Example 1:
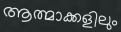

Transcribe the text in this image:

ആത്മാക്കളിലും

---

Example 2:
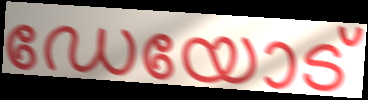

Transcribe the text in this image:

ഡേയോട്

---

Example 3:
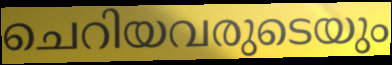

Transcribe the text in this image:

ചെറിയവരുടെയും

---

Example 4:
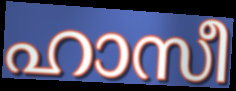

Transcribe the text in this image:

ഹാസീ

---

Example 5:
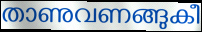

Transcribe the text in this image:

താണുവണങ്ങുകീ